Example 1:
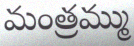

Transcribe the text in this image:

మంత్రమ్ము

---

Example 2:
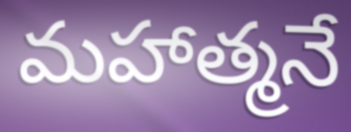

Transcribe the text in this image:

మహాత్మనే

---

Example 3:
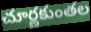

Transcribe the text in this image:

చూర్ణకుంతల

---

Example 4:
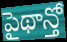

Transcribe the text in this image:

పైథాన్తో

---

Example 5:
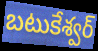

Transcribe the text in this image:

బటుకేశ్వర్